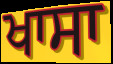
ਖਾਸਾ